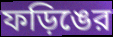
ফড়িঙের